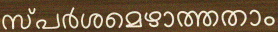
സ്പർശമെഴാത്തതാം